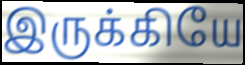
இருக்கியே